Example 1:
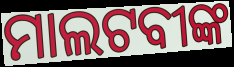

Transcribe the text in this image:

ମାଲଟବୀଙ୍କ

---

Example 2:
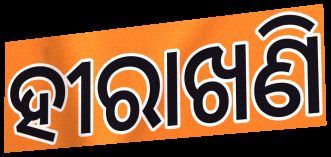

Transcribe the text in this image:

ହୀରାଖଣି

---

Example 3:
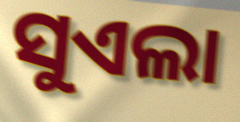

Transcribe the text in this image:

ସୁଏଲା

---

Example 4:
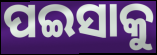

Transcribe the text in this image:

ପଇସାକୁ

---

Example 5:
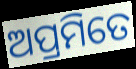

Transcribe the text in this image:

ଅପ୍ରମିତେ